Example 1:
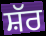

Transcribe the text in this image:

ਸ਼ੱਰ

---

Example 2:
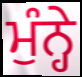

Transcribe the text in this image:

ਮੁੰਨ੍ਹੇ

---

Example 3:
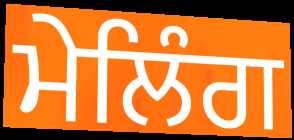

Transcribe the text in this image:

ਮੇਲਿੰਗ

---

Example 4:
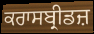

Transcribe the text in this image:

ਕਰਾਸਬ੍ਰੀਡਜ਼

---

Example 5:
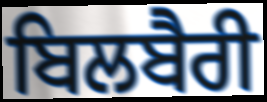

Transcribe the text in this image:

ਬਿਲਬੈਰੀ